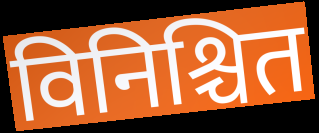
विनिश्चित